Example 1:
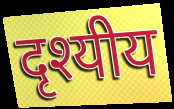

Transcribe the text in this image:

दृश्यीय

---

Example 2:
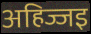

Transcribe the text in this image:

अहिज्जइ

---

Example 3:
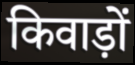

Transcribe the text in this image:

किवाड़ों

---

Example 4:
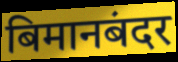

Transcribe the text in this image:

बिमानबंदर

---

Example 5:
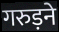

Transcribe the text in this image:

गरुड़ने